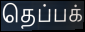
தெப்பக்